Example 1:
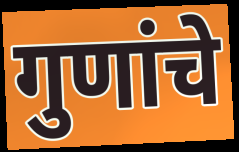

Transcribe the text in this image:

गुणांचे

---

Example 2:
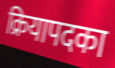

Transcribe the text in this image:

क्रियापदका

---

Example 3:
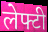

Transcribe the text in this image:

लेफ्टी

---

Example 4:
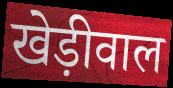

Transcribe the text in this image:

खेड़ीवाल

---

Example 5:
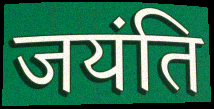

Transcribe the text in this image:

जयंति